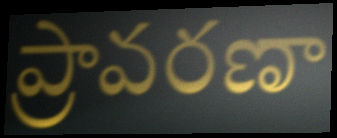
ప్రావరణా